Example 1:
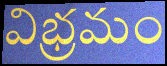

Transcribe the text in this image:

విభ్రమం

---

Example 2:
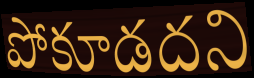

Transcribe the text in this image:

పోకూడదని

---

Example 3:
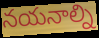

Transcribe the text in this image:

నయనాల్ని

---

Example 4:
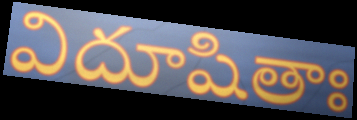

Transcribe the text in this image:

విదూషితాః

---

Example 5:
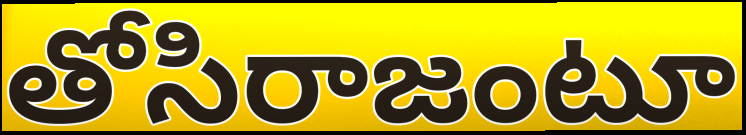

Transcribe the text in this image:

తోసిరాజంటూ